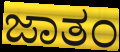
ಜಾತಂ